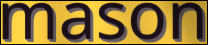
mason